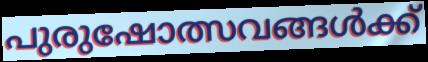
പുരുഷോത്സവങ്ങൾക്ക്